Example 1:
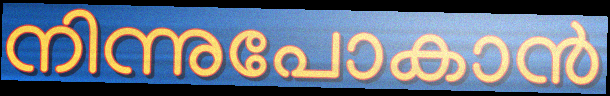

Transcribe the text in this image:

നിന്നുപോകാൻ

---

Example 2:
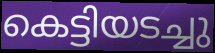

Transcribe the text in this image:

കെട്ടിയടച്ചു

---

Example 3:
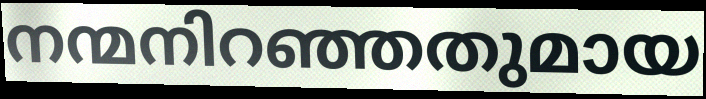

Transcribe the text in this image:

നന്മനിറഞ്ഞതുമായ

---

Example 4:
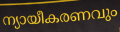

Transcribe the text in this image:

ന്യായീകരണവും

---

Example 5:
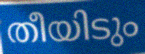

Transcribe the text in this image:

തീയിടും